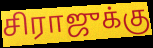
சிராஜுக்கு